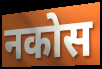
नकोस